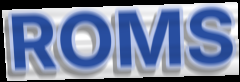
ROMS